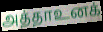
அத்தாஉனக்